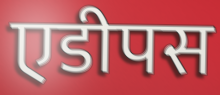
एडीपस